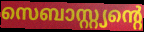
സെബാസ്റ്റ്യന്റെ